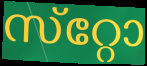
സ്‌റ്റോ